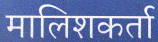
मालिशकर्ता